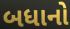
બધાનો